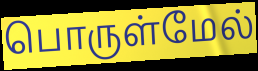
பொருள்மேல்